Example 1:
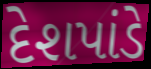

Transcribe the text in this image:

દેશપાંડે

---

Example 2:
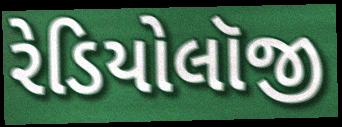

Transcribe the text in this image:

રેડિયોલૉજી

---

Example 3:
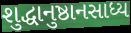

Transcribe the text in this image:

શુદ્ધાનુષ્ઠાનસાધ્ય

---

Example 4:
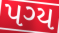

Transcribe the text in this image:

પગ્ય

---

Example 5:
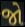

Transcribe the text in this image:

જો